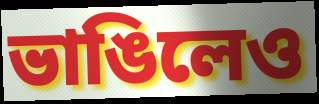
ভাঙিলেও